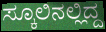
ಸ್ಕೂಲಿನಲ್ಲಿದ್ದ